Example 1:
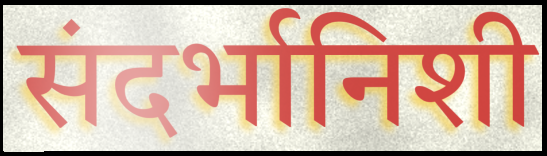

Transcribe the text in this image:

संदर्भानिशी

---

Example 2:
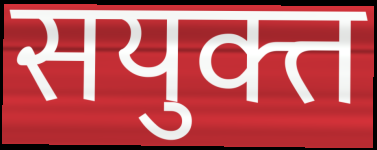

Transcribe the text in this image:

सयुक्त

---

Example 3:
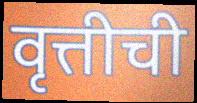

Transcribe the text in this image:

वृत्तीची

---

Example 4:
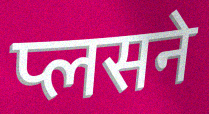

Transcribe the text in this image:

प्लसने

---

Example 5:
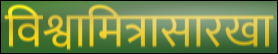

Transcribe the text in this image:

विश्वामित्रासारखा